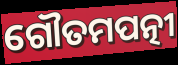
ଗୌତମପତ୍ନୀ